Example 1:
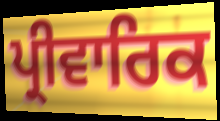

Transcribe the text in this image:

ਪ੍ਰੀਵਾਰਿਕ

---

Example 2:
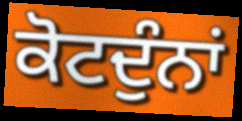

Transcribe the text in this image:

ਕੋਟਦੁੰਨਾਂ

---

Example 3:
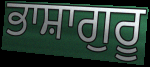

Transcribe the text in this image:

ਭਾਸ਼ਾਗੁਰੂ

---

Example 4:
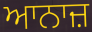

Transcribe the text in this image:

ਆਨਾਜ਼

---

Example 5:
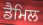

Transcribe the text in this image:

ਡੈਮਿਲ